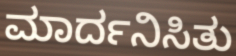
ಮಾರ್ದನಿಸಿತು